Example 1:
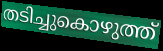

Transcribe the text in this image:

തടിച്ചുകൊഴുത്ത്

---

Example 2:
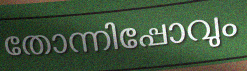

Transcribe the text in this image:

തോന്നിപ്പോവും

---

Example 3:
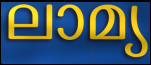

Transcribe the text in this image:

ലാമ്യ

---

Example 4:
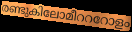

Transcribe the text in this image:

രണ്ടുകിലോമീറററോളം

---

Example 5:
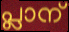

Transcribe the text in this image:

പ്ലാന്